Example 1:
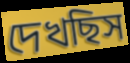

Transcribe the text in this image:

দেখছিস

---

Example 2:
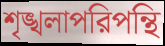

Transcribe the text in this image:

শৃঙ্খলাপরিপন্থি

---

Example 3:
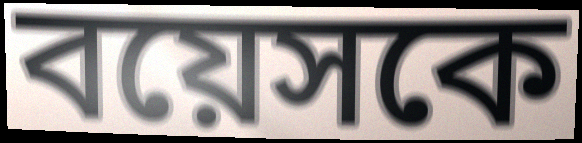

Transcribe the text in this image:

বয়েসকে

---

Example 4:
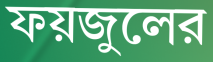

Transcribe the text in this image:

ফয়জুলের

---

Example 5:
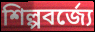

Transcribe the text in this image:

শিল্পবর্জ্যে